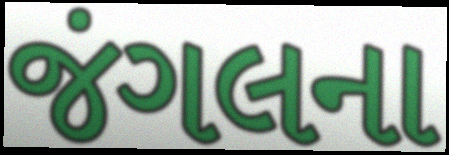
જંગલના